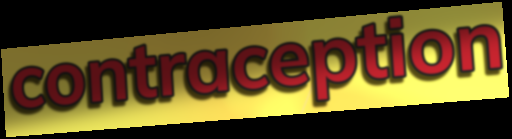
contraception